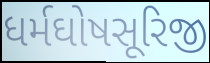
ધર્મઘોષસૂરિજી